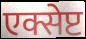
एक्सेप्ट